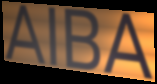
AIBA